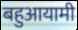
बहुआयामी